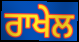
ਰਾਖੇਲ